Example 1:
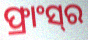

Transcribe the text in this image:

ଫ୍ରାଂସ୍‍ର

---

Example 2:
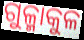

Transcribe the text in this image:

ଗୁଳ୍ମାକୁଳ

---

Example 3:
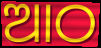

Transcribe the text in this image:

ଆଠ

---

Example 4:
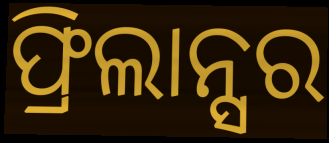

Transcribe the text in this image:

ଫ୍ରିଲାନ୍ସର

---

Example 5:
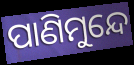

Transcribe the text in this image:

ପାଣିମୁନ୍ଦେ